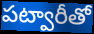
పట్వారీతో